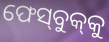
ଫେସ୍‌ବୁକ୍‌କୁ